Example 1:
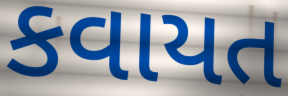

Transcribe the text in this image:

કવાયત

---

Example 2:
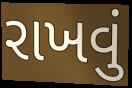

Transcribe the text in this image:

રાખવું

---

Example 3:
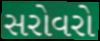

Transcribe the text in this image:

સરોવરો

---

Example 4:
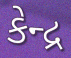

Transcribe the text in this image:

કેન્દ્ર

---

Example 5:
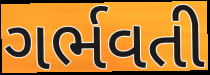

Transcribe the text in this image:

ગર્ભવતી